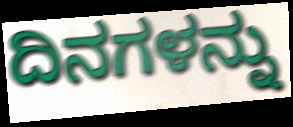
ದಿನಗಳನ್ನು